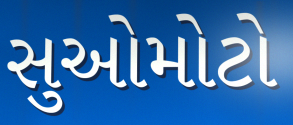
સુઓમોટો